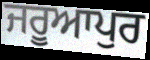
ਜਰੂਆਪੁਰ